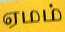
ஏமம்